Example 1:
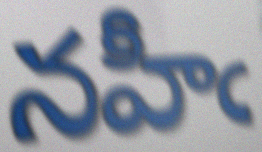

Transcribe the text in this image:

నహీఁ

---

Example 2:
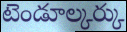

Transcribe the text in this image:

టెండూల్కర్కు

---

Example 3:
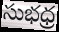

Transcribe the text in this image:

సుభధ్ర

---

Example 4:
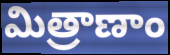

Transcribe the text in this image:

మిత్రాణాం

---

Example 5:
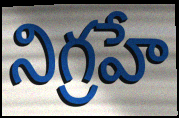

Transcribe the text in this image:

నిగ్రహే